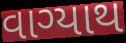
વાગ્યાથ